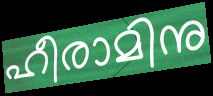
ഹീരാമിനു